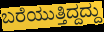
ಬರೆಯುತ್ತಿದ್ದದ್ದು